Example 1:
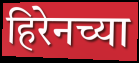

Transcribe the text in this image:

हिरेनच्या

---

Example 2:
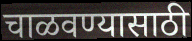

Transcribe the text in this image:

चाळवण्यासाठी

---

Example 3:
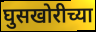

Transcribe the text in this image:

घुसखोरीच्या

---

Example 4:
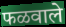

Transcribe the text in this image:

फळवाले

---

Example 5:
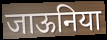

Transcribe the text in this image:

जाऊनिया